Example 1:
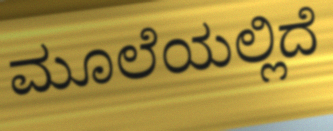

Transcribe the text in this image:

ಮೂಲೆಯಲ್ಲಿದೆ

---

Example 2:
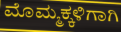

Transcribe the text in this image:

ಮೊಮ್ಮಕ್ಕಳಿಗಾಗಿ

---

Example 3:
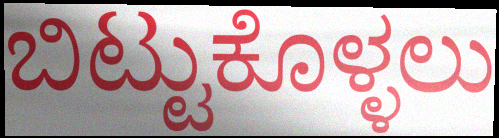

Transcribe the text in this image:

ಬಿಟ್ಟುಕೊಳ್ಳಲು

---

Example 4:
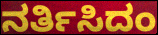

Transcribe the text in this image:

ನರ್ತಿಸಿದಂ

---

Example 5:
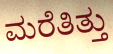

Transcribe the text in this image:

ಮರೆತಿತ್ತು